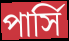
পার্সি